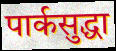
पार्कसुद्धा